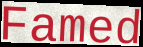
Famed